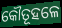
କୌତୂହଳେ